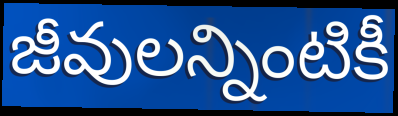
జీవులన్నింటికీ